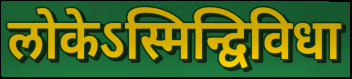
लोकेऽस्मिन्द्विविधा